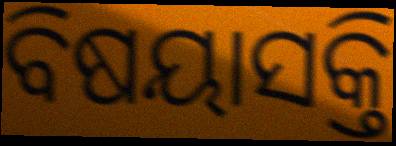
ବିଷୟାସକ୍ତି